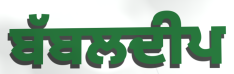
ਬੱਬਲਦੀਪ